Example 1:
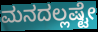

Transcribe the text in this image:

ಮನದಲ್ಲಷ್ಟೇ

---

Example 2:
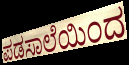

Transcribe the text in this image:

ಪಡಸಾಲೆಯಿಂದ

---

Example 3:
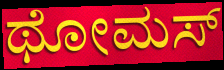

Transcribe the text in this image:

ಥೋಮಸ್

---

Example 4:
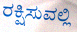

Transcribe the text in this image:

ರಕ್ಷಿಸುವಲ್ಲಿ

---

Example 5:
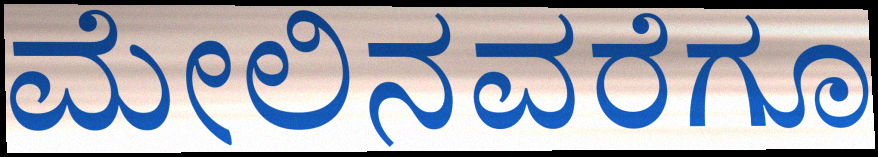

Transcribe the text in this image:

ಮೇಲಿನವರೆಗೂ